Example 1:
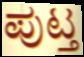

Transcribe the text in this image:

ಪುಟ್ತ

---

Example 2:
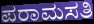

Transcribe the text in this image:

ಪರಾಮಸತಿ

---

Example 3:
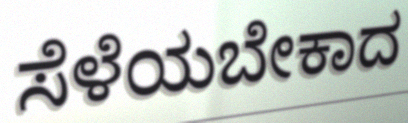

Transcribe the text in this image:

ಸೆಳೆಯಬೇಕಾದ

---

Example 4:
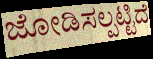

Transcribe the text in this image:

ಜೋಡಿಸಲ್ಪಟ್ಟಿದೆ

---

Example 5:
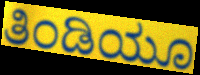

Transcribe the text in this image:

ತಿಂಡಿಯೂ